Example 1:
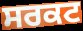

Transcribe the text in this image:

ਸਰਕਟ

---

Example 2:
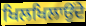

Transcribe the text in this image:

ਖਿਲਖਿਲਾਉਂਦੇ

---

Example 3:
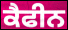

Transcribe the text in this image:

ਕੈਫੀਨ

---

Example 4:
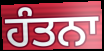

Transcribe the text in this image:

ਹੰਤਨਾ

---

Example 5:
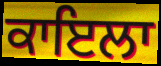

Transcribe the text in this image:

ਕਾਇਲਾ